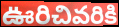
ఊరిచివరికి